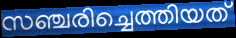
സഞ്ചരിച്ചെത്തിയത്